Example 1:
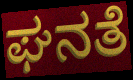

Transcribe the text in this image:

ಘನತೆ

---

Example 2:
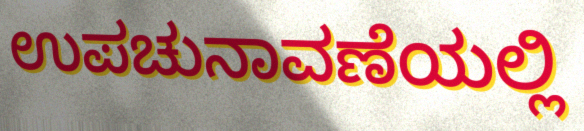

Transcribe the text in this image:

ಉಪಚುನಾವಣೆಯಲ್ಲಿ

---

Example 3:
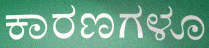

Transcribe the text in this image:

ಕಾರಣಗಳೂ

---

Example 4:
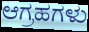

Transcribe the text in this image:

ಆಗ್ರಹಗಳು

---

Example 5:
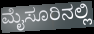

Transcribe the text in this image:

ಮೈಸೂರಿನಲ್ಲಿ